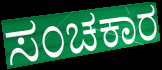
ಸಂಚಕಾರ